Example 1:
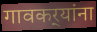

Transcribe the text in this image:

गावकर्यांना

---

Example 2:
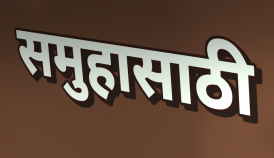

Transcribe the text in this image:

समुहासाठी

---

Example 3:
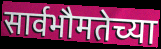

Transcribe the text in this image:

सार्वभौमतेच्या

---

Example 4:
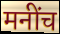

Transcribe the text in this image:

मनींच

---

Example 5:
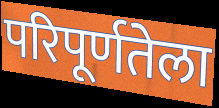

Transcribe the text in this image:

परिपूर्णतेला